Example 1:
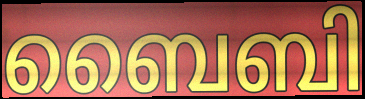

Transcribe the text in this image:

ബൈബി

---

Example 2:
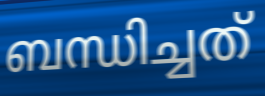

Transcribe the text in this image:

ബന്ധിച്ചത്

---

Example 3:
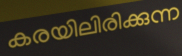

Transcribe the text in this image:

കരയിലിരിക്കുന്ന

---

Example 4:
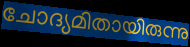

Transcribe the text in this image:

ചോദ്യമിതായിരുന്നു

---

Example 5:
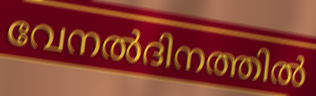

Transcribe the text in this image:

വേനൽദിനത്തിൽ